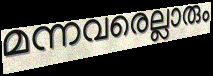
മന്നവരെല്ലാരും